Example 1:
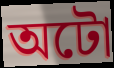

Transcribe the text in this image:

অটো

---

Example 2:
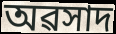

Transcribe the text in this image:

অৱসাদ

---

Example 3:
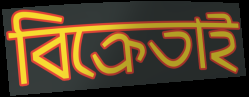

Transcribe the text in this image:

বিক্ৰেতাই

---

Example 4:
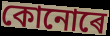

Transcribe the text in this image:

কোনোৰে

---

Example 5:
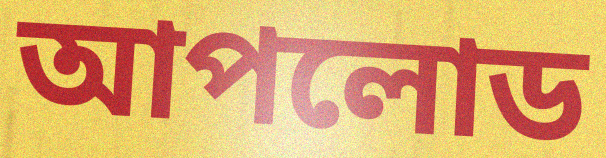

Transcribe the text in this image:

আপলোড